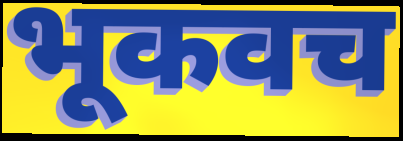
भूकवच